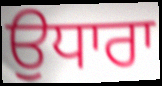
ਉਧਾਰਾ